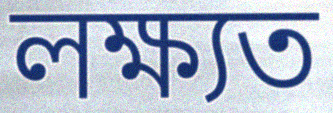
লক্ষ্যত